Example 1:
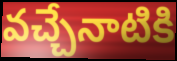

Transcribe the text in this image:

వచ్చేనాటికి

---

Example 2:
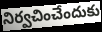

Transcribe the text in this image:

నిర్వచించేందుకు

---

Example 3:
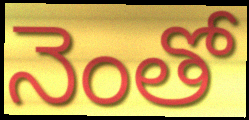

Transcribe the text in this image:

నెంతో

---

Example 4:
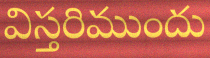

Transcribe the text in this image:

విస్తరిముందు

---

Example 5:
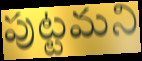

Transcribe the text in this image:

పుట్టమని